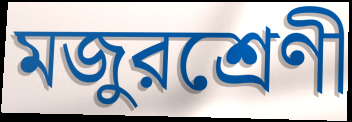
মজুরশ্রেণী